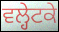
ਵਲ੍ਹੇਟਕੇ